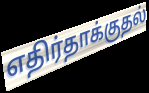
எதிர்தாக்குதல்